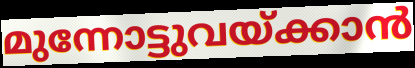
മുന്നോട്ടുവയ്ക്കാൻ